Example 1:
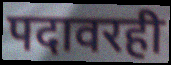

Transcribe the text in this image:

पदावरही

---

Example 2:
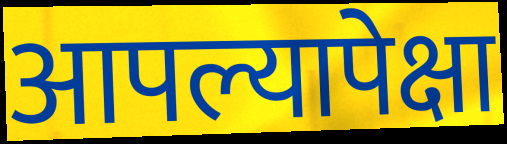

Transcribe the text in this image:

आपल्यापेक्षा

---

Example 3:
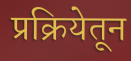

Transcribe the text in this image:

प्रक्रियेतून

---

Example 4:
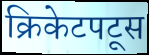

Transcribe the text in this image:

क्रिकेटपटूस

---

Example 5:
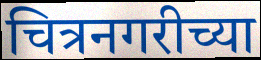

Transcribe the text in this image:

चित्रनगरीच्या